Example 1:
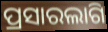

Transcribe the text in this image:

ପ୍ରସାରଲାଗି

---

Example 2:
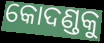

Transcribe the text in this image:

କୋଦଣ୍ଡକୁ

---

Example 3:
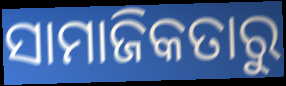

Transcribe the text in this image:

ସାମାଜିକତାରୁ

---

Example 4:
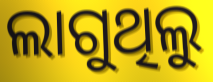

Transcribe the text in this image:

ଲାଗୁଥିଲୁ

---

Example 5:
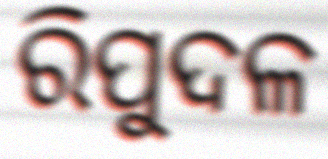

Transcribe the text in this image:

ରିପୁଦଳ